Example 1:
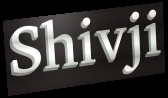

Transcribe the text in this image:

Shivji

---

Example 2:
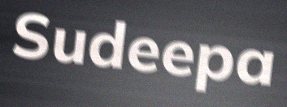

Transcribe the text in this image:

Sudeepa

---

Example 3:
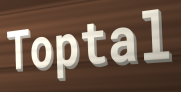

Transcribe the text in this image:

Toptal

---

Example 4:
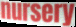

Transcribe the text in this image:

nursery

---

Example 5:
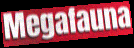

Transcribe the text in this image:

Megafauna